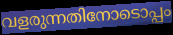
വളരുന്നതിനോടൊപ്പം